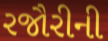
રજૌરીની